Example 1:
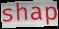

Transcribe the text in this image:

shap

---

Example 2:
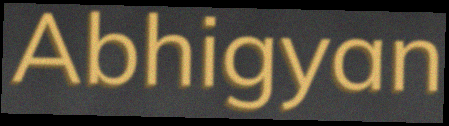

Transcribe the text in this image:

Abhigyan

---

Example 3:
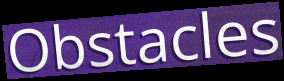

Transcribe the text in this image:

Obstacles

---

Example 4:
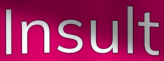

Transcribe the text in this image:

Insult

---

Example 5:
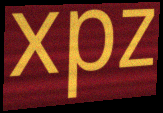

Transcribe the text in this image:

xpz